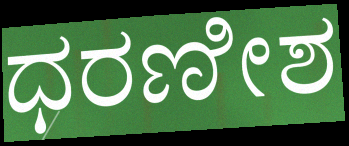
ಧರಣೀಶ